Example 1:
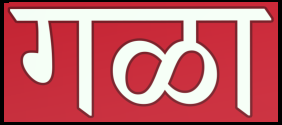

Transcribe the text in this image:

गळा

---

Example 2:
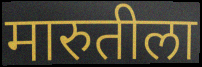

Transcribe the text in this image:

मारुतीला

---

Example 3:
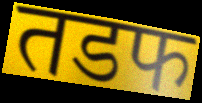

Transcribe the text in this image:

तडफ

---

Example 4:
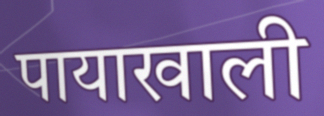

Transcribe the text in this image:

पायाखाली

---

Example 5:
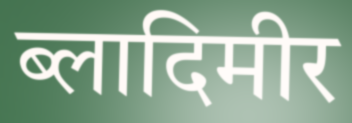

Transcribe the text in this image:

ब्लादिमीर